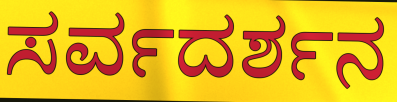
ಸರ್ವದರ್ಶನ